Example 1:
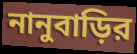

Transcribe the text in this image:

নানুবাড়ির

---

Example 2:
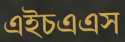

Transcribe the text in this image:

এইচএএস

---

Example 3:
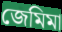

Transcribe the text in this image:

জেমিমা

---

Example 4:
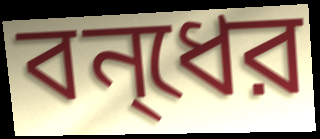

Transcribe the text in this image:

বন্‌ধের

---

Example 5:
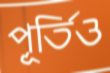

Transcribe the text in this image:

পূর্তিও